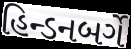
હિન્ડનબર્ગે